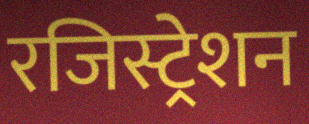
रजिस्ट्रेशन